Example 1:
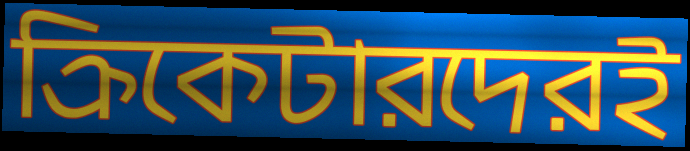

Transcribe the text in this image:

ক্রিকেটারদেরই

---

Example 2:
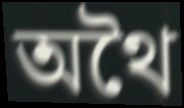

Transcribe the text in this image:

অথৈ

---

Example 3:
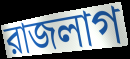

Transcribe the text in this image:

রাজলাগ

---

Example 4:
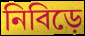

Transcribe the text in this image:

নিবিড়ে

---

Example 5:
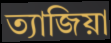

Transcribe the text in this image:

ত্যাজিয়া